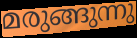
മരുങ്ങുന്നു